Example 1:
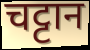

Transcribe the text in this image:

चट्टान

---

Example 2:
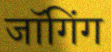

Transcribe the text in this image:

जॉगिंग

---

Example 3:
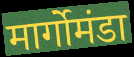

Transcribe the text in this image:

मार्गोमंडा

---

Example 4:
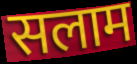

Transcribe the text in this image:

सलाम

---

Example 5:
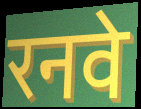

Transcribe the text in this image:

रनवे